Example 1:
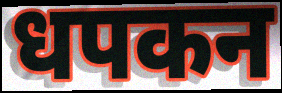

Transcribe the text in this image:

धपकन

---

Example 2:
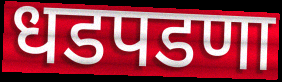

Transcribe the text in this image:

धडपडणा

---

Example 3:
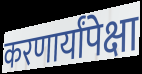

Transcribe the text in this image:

करणार्यांपेक्षा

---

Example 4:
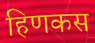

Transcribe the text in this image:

हिणकस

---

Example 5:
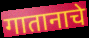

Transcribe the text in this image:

गातानाचे